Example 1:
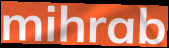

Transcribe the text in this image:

mihrab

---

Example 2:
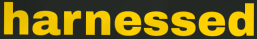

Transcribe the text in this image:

harnessed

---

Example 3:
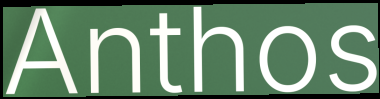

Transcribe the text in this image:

Anthos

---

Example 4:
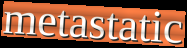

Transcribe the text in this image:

metastatic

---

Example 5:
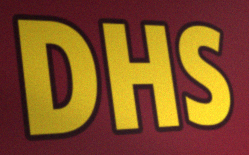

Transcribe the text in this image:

DHS